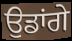
ਉਡਾਂਗੇ